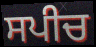
ਸਪੀਚ